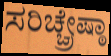
ಸರಿಚ್ಚ್ರೇಷ್ಠಾ